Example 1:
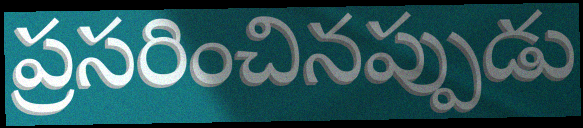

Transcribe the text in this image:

ప్రసరించినప్పుడు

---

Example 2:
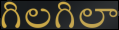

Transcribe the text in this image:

గిలగిలా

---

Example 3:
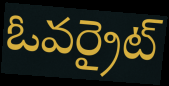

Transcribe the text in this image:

ఓవర్రైట్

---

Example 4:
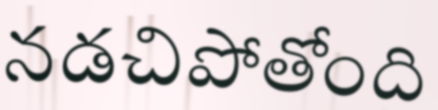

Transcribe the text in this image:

నడచిపోతోంది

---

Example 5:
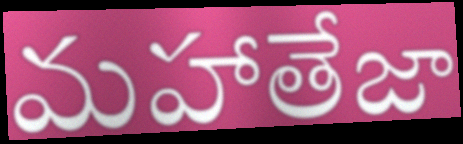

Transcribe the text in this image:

మహాతేజా